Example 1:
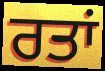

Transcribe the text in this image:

ਰਤਾਂ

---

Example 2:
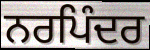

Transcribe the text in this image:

ਨਰਪਿੰਦਰ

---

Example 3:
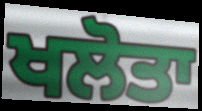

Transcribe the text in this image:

ਖਲੋਤਾ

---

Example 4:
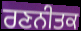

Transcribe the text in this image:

ਰਣਨੀਤਕ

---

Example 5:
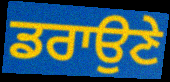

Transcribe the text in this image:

ਡਰਾਉਣੇ